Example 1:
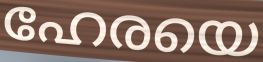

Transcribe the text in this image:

ഹേരയെ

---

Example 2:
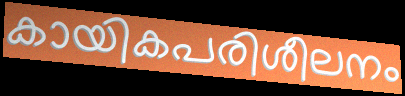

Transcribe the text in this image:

കായികപരിശീലനം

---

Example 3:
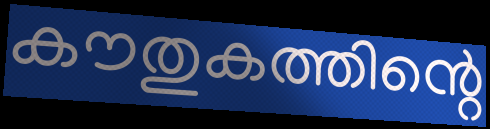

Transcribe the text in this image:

കൗതുകത്തിന്റെ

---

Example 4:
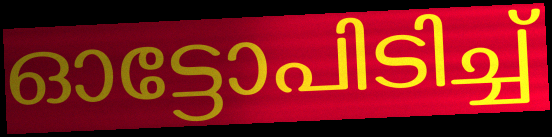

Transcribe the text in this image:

ഓട്ടോപിടിച്ച്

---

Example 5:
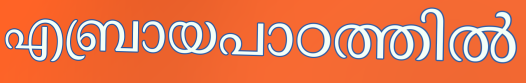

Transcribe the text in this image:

എബ്രായപാഠത്തിൽ